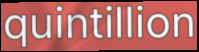
quintillion